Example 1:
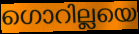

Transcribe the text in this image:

ഗൊറില്ലയെ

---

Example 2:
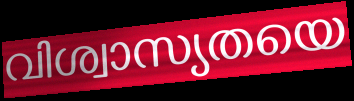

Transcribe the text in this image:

വിശ്വാസ്യതയെ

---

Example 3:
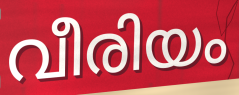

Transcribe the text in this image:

വീരിയം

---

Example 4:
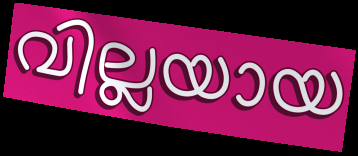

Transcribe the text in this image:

വില്ലയായ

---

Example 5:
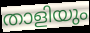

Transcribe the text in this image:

താളിയും